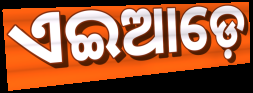
ଏଇଆଡ଼େ